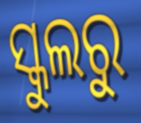
ସ୍କୁଲରୁ